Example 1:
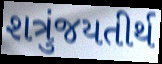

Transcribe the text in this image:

શત્રુંજયતીર્થ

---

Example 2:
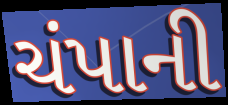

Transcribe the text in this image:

ચંપાની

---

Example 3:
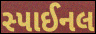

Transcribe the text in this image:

સ્પાઈનલ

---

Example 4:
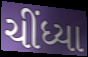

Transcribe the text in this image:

ચીંધ્યા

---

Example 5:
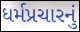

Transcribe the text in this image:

ધર્મપ્રચારનું